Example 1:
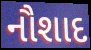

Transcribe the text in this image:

નૌશાદ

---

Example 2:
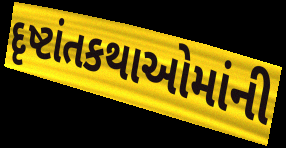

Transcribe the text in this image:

દૃષ્ટાંતકથાઓમાંની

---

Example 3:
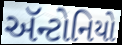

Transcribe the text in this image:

ઍન્ટોનિયો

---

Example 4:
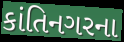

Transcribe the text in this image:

કાંતિનગરના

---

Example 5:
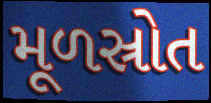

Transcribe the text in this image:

મૂળસ્રોત